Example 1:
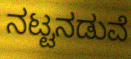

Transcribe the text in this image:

ನಟ್ಟನಡುವೆ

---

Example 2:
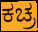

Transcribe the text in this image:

ಕಚ್ರ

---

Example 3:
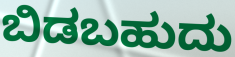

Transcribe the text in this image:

ಬಿಡಬಹುದು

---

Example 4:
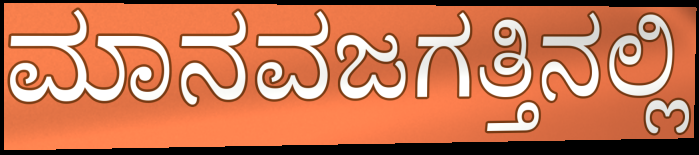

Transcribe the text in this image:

ಮಾನವಜಗತ್ತಿನಲ್ಲಿ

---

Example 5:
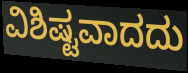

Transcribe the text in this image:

ವಿಶಿಷ್ಟವಾದದು